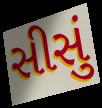
સીસું